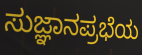
ಸುಜ್ಞಾನಪ್ರಭೆಯ